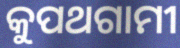
କୁପଥଗାମୀ